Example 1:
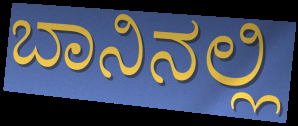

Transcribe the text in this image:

ಬಾನಿನಲ್ಲಿ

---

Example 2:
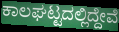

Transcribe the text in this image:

ಕಾಲಘಟ್ಟದಲ್ಲಿದ್ದೇವೆ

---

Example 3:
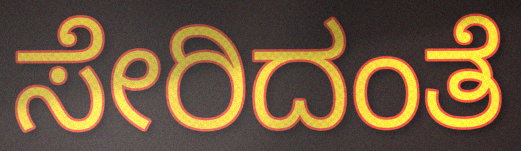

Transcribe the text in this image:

ಸೇರಿದಂತೆ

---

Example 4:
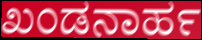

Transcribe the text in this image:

ಖಂಡನಾರ್ಹ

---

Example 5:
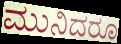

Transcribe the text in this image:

ಮುನಿದರೂ